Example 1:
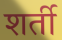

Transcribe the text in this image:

शर्ती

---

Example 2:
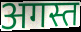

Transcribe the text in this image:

अगस्त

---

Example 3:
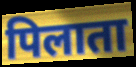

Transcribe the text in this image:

पिलाता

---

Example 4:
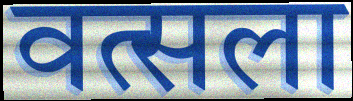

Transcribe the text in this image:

वत्‍सला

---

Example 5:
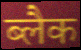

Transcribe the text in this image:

ब्लैक